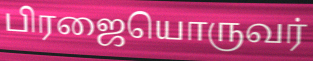
பிரஜையொருவர்